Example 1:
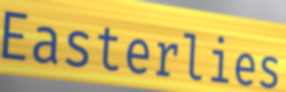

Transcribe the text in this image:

Easterlies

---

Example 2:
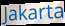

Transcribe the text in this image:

Jakarta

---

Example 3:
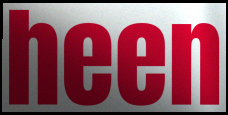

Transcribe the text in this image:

heen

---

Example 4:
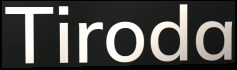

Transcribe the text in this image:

Tiroda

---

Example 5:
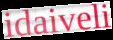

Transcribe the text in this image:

idaiveli